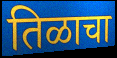
तिळाचा